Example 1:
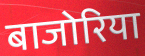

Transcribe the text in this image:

बाजोरिया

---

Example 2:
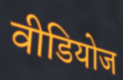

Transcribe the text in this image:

वीडियोज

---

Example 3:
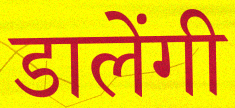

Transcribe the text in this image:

डालेंगी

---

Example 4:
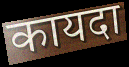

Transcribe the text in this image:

कायदा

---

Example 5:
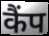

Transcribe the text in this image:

कैंप